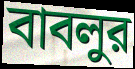
বাবলুর